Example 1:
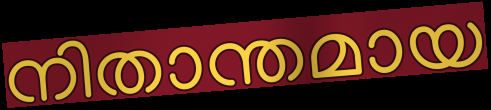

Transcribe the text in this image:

നിതാന്തമായ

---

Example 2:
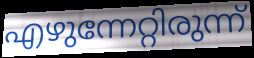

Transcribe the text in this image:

എഴുന്നേറ്റിരുന്ന്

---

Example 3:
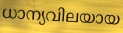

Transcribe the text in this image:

ധാന്യവിലയായ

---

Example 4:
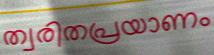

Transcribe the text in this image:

ത്വരിതപ്രയാണം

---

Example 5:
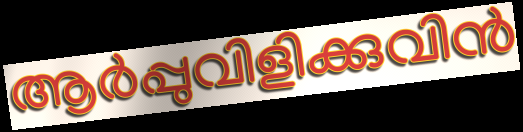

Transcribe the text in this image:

ആർപ്പുവിളിക്കുവിൻ